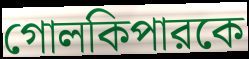
গোলকিপারকে